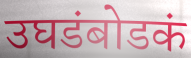
उघडंबोडकं